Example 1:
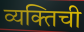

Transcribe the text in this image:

व्यक्तिची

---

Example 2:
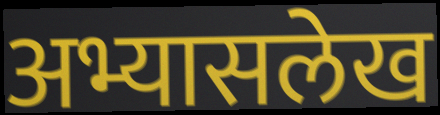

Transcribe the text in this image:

अभ्यासलेख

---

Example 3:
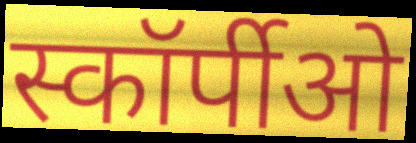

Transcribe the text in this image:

स्कॉर्पीओ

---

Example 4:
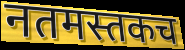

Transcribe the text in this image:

नतमस्तकच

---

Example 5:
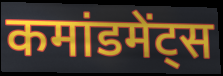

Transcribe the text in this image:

कमांडमेंट्स